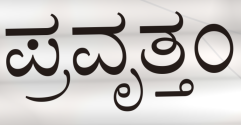
ಪ್ರವೃತ್ತಂ